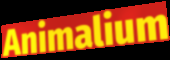
Animalium